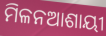
ମିଳନଆଶାୟୀ